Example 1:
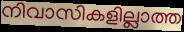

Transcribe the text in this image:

നിവാസികളില്ലാത്ത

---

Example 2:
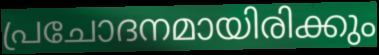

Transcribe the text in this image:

പ്രചോദനമായിരിക്കും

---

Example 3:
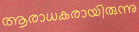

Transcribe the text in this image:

ആരാധകരായിരുന്നു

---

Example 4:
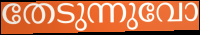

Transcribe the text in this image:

തേടുന്നുവോ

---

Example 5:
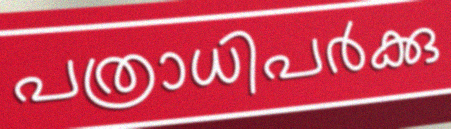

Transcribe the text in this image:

പത്രാധിപർക്കു